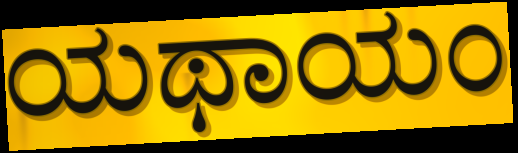
ಯಥಾಯಂ